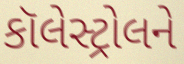
કૉલેસ્ટ્રોલને